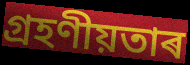
গ্ৰহণীয়তাৰ